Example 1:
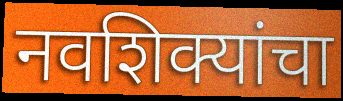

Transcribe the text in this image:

नवशिक्यांचा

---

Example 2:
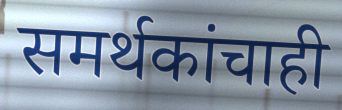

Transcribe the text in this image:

समर्थकांचाही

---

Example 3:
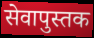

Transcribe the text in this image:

सेवापुस्तक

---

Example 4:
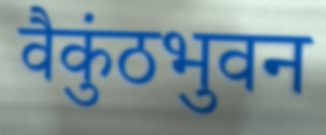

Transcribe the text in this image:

वैकुंठभुवन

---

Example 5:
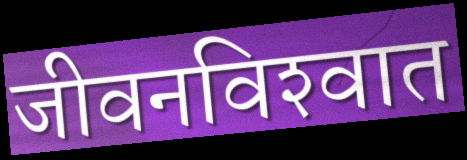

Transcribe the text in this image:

जीवनविश्वात